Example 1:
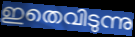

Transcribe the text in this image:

ഇതെവിടുന്നു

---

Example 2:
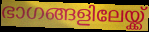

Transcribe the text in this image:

ഭാഗങ്ങളിലേയ്ക്ക്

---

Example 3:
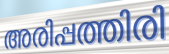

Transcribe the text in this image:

അരിപ്പത്തിരി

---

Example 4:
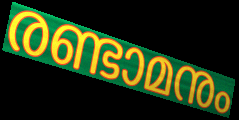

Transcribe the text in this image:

രണ്ടാമനും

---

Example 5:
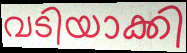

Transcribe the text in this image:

വടിയാക്കി